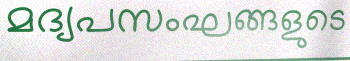
മദ്യപസംഘങ്ങളുടെ